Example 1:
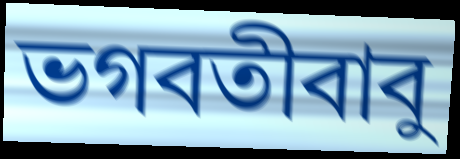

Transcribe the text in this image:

ভগবতীবাবু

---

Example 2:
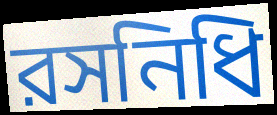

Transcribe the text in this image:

রসনিধি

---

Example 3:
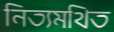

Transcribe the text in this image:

নিত্যমথিত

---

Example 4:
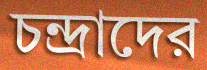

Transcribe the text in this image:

চন্দ্রাদের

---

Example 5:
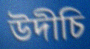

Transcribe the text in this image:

উদীচি